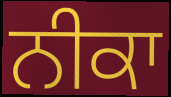
ਨੀਕਾ